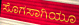
ಸೊಗಸಾಗಿಯೂ